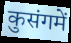
कुसंगमें